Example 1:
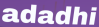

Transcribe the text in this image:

adadhi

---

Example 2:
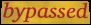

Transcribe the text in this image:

bypassed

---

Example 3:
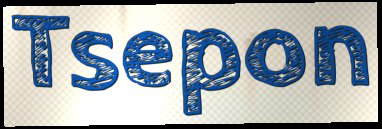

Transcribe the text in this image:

Tsepon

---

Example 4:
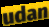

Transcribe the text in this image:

udan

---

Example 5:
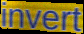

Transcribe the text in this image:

invert